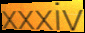
xxxiv